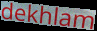
dekhlam